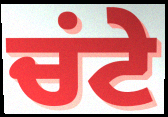
ਚਂਟੇ